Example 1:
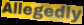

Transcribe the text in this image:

Allegedly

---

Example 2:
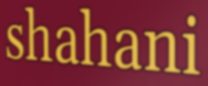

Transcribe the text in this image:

shahani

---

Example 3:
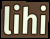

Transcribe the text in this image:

lihi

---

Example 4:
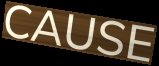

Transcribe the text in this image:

CAUSE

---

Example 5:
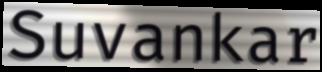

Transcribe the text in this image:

Suvankar